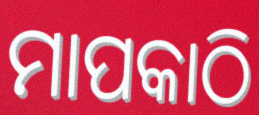
ମାପକାଠି